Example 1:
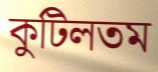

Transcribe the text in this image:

কুটিলতম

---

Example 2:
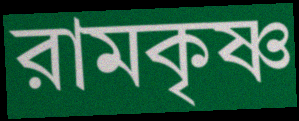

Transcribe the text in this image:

রামকৃষ্ণ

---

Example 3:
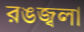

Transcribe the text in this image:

রঙজ্বলা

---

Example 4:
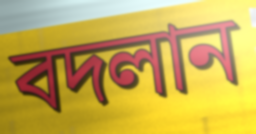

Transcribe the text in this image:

বদলান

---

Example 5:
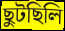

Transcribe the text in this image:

ছুটছিলি